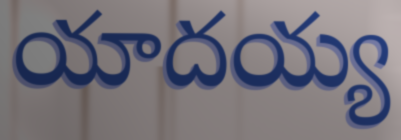
యాదయ్య